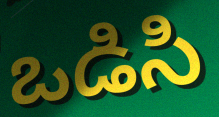
ఒడిసి